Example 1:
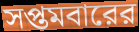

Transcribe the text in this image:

সপ্তমবারের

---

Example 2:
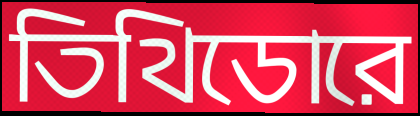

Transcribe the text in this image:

তিথিডোরে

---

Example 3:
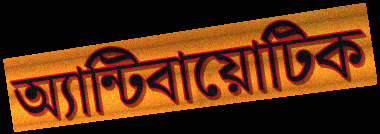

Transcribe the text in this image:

অ্যান্টিবায়োটিক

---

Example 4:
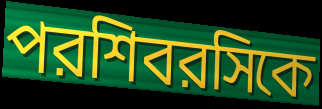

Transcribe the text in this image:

পরশিবরসিকে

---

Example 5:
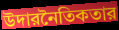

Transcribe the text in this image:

উদারনৈতিকতার